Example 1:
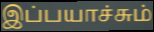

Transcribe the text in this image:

இப்பயாச்சும்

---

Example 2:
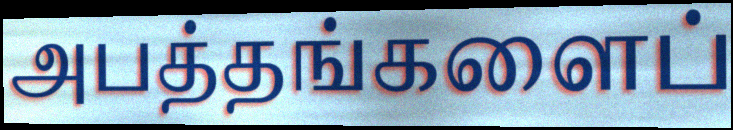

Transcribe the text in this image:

அபத்தங்களைப்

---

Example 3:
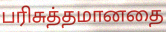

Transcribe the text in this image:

பரிசுத்தமானதை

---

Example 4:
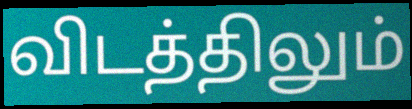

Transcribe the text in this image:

விடத்திலும்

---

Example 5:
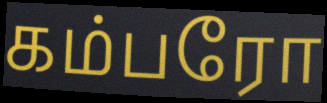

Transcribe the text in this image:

கம்பரோ